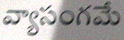
వ్యాసంగమే